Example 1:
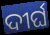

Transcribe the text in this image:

ଦୀର୍ଘ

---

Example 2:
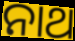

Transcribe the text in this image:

ନାଥ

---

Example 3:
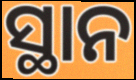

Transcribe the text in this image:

ସ୍ଥାନ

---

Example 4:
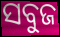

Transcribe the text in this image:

ସବୁଜ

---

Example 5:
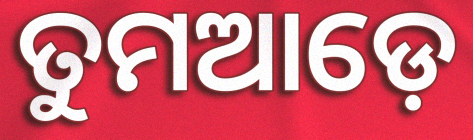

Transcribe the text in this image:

ତୁମଆଡ଼େ